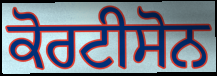
ਕੋਰਟੀਸੋਨ